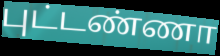
புட்டண்ணா